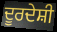
ਦੂਰਦੇਸ਼ੀ